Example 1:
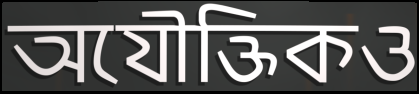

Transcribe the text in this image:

অযৌক্তিকও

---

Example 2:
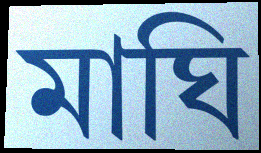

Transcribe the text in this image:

মাঘি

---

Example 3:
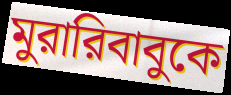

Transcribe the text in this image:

মুরারিবাবুকে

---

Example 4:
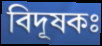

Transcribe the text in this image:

বিদূষকঃ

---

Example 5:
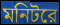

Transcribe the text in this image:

মনিটরে